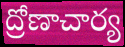
ద్రోణాచార్య